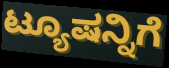
ಟ್ಯೂಷನ್ನಿಗೆ